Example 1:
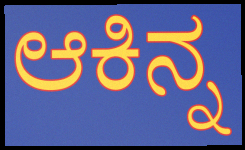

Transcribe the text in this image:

ಆಕಿನ್ನ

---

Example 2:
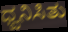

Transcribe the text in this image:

ಧ್ವನಿಸಿತು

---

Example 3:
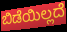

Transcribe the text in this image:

ಬಿಡೆಯಿಲ್ಲದೆ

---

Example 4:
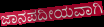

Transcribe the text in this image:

ಜಾನಪದೀಯವಾಗಿ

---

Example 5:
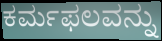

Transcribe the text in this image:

ಕರ್ಮಫಲವನ್ನು